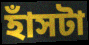
হাঁসটা